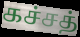
கச்சத்